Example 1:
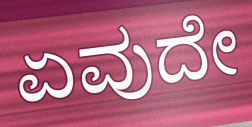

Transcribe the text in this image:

ಏವುದೇ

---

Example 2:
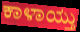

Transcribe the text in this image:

ಕಾಳಾಯ್ತು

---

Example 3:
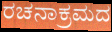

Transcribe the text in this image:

ರಚನಾಕ್ರಮದ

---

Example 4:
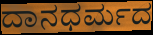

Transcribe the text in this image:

ದಾನಧರ್ಮದ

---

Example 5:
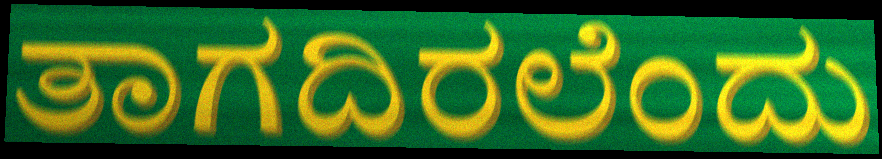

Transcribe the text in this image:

ತಾಗದಿರಲೆಂದು